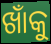
ଖାଁକୁ